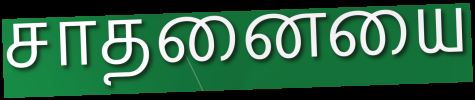
சாதனையை